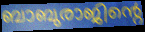
ബാബുരാജിന്റെ